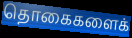
தொகைகளைக்